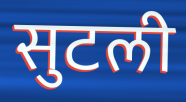
सुटली